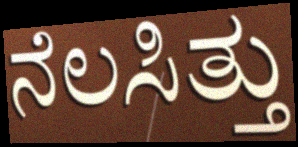
ನೆಲಸಿತ್ತು